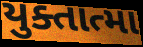
યુક્તાત્મા